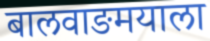
बालवाङमयाला